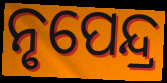
ନୃପେନ୍ଦ୍ର